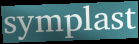
symplast